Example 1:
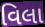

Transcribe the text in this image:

વિલા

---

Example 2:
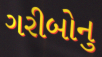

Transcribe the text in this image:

ગરીબોનુ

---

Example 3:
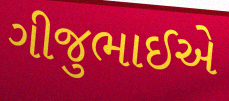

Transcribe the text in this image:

ગીજુભાઈએ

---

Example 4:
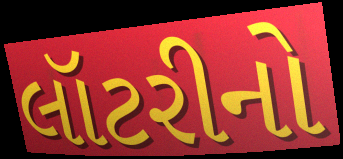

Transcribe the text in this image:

લૉટરીનો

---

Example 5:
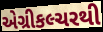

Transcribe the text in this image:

એગ્રીકલ્ચરથી